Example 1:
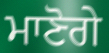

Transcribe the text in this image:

ਮਾਣੋਗੇ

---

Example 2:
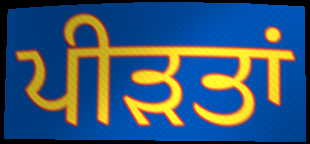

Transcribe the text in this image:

ਪੀਡ਼ਤਾਂ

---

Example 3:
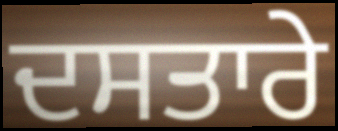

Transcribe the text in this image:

ਦਸਤਾਰੇ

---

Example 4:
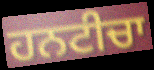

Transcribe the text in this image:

ਹਨਟੀਚਾ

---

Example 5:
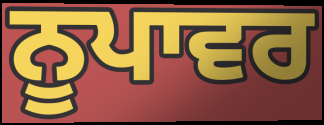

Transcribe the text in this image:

ਨੂਪਾਵਰ